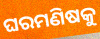
ଘରମଣିଷକୁ